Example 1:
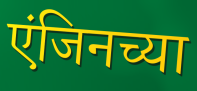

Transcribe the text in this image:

एंजिनच्या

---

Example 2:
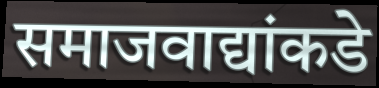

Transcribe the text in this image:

समाजवाद्यांकडे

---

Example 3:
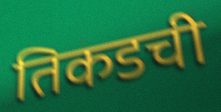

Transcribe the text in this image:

तिकडची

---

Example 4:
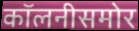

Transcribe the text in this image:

कॉलनीसमोर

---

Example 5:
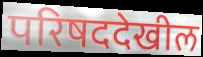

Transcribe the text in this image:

परिषददेखील